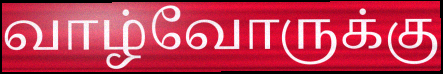
வாழ்வோருக்கு